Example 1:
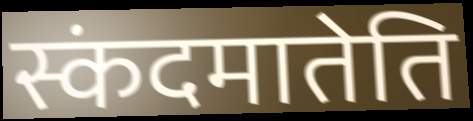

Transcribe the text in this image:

स्कंदमातेति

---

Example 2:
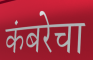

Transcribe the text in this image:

कंबरेचा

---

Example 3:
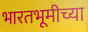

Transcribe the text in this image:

भारतभूमीच्या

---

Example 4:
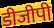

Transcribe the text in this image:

डीजीपी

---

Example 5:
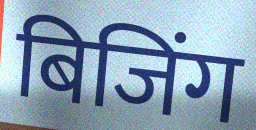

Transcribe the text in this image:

बिजिंग